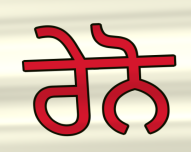
ਰੇਨੋ